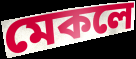
মেকলে